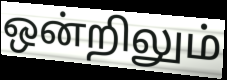
ஒன்றிலும்